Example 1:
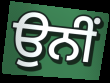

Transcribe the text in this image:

ਉਨੀਂ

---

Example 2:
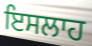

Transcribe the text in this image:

ਇਸਲਾਹ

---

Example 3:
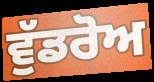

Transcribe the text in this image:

ਵੁੱਡਰੋਅ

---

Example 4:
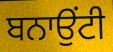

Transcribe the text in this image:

ਬਨਾਉਂਟੀ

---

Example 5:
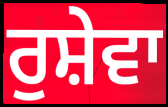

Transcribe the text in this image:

ਰੁਸ਼ੇਵਾ